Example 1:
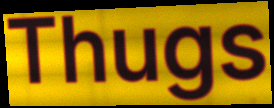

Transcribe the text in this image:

Thugs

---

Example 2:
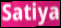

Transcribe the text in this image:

Satiya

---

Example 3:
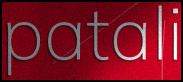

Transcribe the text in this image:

patali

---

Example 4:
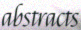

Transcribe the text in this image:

abstracts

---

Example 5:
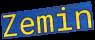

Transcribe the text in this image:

Zemin